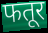
फतूर